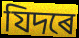
যিদৰে